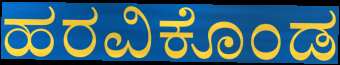
ಹರವಿಕೊಂಡ